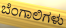
ಬೆಂಗಾಲಿಗಳು